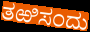
ತಱಿಸಂದು